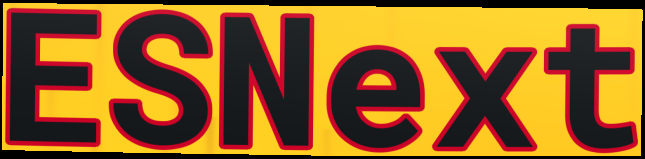
ESNext